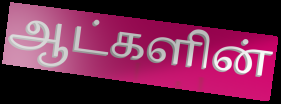
ஆட்களின்